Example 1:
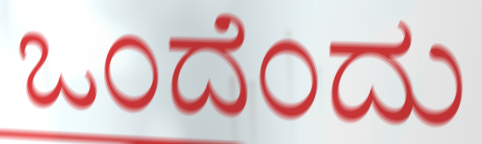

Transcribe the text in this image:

ಒಂದೆಂದು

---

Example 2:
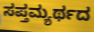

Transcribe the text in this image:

ಸಪ್ತಮ್ಯರ್ಥದ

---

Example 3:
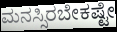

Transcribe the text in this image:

ಮನಸ್ಸಿರಬೇಕಷ್ಟೇ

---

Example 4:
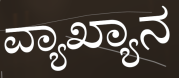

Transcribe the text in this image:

ವ್ಯಾಖ್ಯಾನ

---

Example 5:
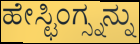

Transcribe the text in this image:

ಹೇಸ್ಟಿಂಗ್ಸ್ನನ್ನು